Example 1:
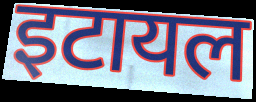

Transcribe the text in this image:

इटायल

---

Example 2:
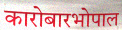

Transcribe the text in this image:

कारोबारभोपाल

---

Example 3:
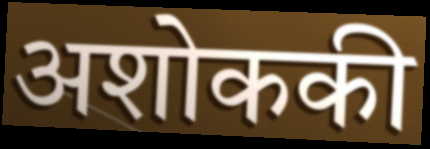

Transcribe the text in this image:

अशोककी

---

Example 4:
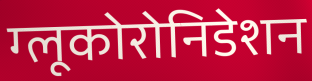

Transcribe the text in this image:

ग्लूकोरोनिडेशन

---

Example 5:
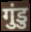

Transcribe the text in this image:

गुंडु